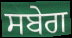
ਸਬੇਗ